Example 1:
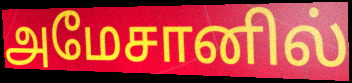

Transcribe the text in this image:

அமேசானில்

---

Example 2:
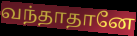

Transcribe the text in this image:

வந்தாதானே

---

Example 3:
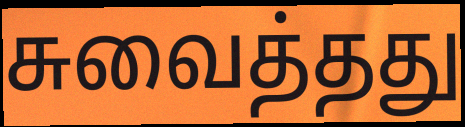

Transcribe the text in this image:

சுவைத்தது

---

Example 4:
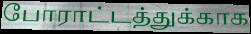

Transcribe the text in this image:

போராட்டத்துக்காக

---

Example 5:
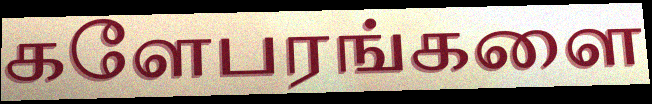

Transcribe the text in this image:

களேபரங்களை